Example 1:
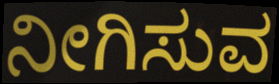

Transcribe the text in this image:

ನೀಗಿಸುವ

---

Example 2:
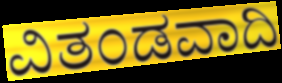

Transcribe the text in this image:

ವಿತಂಡವಾದಿ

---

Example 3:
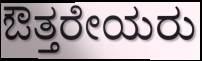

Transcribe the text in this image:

ಔತ್ತರೇಯರು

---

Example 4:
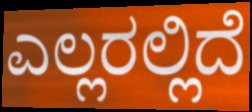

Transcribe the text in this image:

ಎಲ್ಲರಲ್ಲಿದೆ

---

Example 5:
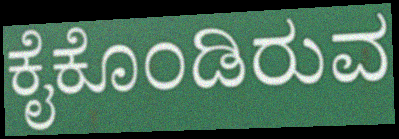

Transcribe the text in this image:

ಕೈಕೊಂಡಿರುವ